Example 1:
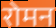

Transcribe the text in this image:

रोमन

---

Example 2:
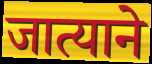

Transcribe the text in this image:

जात्याने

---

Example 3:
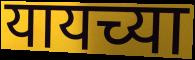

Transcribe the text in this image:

यायच्या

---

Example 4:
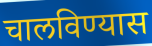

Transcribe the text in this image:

चालविण्यास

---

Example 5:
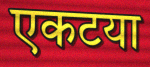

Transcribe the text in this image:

एकटया